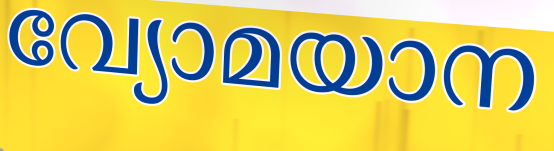
വ്യോമയാന